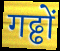
गढ्ढों